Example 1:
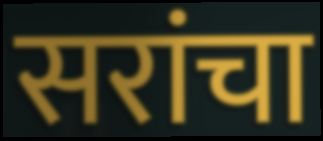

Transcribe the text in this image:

सरांचा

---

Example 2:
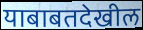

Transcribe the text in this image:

याबाबतदेखील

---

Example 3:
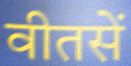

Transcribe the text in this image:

वीतसें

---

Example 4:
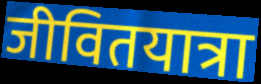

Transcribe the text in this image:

जीवितयात्रा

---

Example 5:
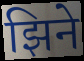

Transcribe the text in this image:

झिने